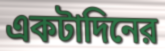
একটাদিনের